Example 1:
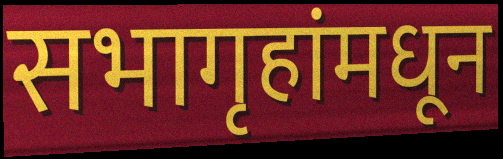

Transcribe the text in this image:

सभागृहांमधून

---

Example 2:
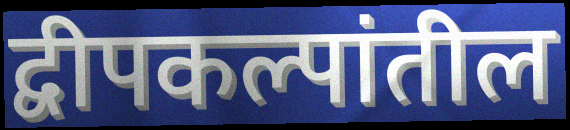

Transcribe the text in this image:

द्वीपकल्पांतील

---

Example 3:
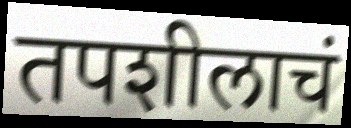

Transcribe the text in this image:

तपशीलाचं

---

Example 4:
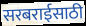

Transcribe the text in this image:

सरबराईसाठी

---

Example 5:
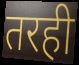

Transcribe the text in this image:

तरही